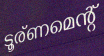
ടൂര്ണമെന്റ്